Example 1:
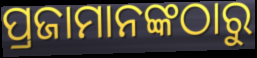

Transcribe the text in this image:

ପ୍ରଜାମାନଙ୍କଠାରୁ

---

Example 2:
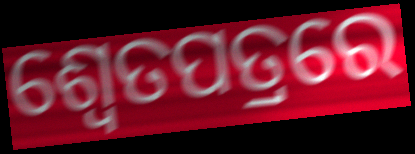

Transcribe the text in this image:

ଶ୍ଵେତପତ୍ରରେ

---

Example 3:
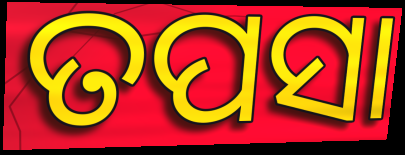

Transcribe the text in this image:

ତପସା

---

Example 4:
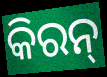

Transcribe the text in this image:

କିରନ୍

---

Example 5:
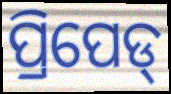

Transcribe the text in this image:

ପ୍ରିପେଡ୍